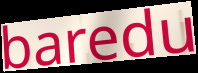
baredu